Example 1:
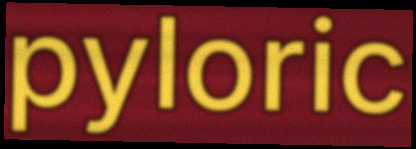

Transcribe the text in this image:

pyloric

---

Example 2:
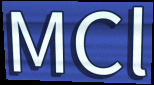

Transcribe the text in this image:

MCl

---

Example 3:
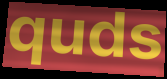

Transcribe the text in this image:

quds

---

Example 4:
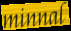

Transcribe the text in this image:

minnal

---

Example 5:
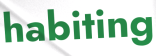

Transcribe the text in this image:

habiting